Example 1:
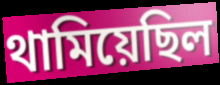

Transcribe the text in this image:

থামিয়েছিল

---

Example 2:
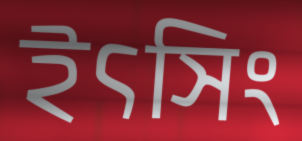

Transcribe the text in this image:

ইৎসিং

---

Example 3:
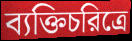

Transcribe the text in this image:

ব্যক্তিচরিত্রে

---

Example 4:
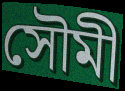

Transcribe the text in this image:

সৌমী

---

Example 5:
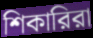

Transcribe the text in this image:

শিকারিরা